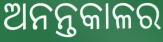
ଅନନ୍ତକାଳର